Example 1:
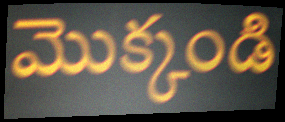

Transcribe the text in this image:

మొక్కండి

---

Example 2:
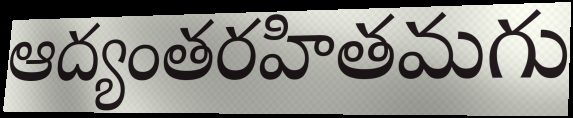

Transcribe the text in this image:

ఆద్యంతరహితమగు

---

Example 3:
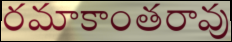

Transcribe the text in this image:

రమాకాంతరావు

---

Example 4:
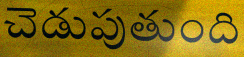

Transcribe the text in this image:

చెడుపుతుంది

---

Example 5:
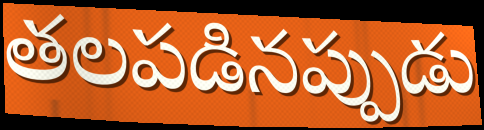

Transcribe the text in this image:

తలపడినప్పుడు